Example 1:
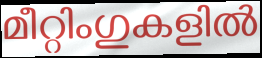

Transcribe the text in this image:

മീറ്റിംഗുകളിൽ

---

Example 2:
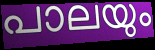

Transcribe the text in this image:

പാലയും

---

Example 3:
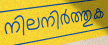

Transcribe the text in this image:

നിലനിർത്തുക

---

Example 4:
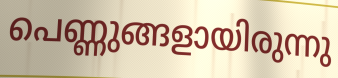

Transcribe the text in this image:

പെണ്ണുങ്ങളായിരുന്നു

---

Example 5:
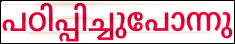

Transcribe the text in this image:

പഠിപ്പിച്ചുപോന്നു